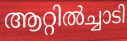
ആറ്റിൽച്ചാടി